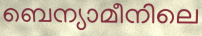
ബെന്യാമീനിലെ